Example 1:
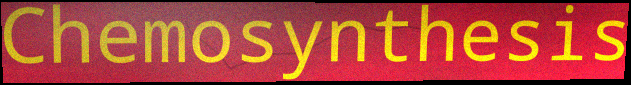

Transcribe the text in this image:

Chemosynthesis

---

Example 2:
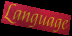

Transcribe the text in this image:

Language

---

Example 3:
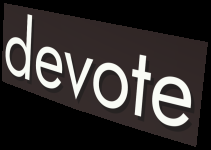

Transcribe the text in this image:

devote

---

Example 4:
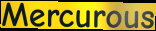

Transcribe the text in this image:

Mercurous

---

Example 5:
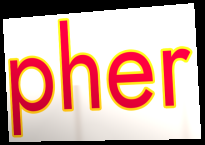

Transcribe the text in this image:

pher